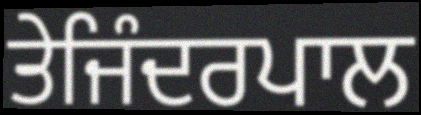
ਤੇਜਿੰਦਰਪਾਲ